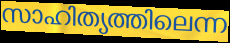
സാഹിത്യത്തിലെന്ന